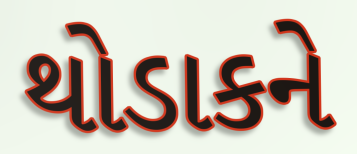
થોડાકને